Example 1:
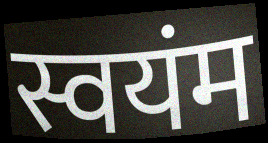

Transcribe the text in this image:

स्वयंम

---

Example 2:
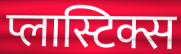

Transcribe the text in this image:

प्लास्टिक्स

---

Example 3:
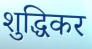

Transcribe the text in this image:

शुद्धिकर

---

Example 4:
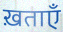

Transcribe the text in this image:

ख़ताएँ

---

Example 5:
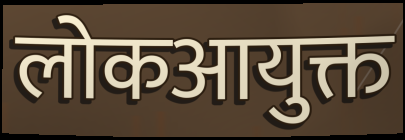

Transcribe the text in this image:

लोकआयुक्त